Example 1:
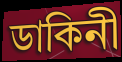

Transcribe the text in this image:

ডাকিনী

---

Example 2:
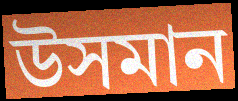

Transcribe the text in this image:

উসমান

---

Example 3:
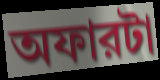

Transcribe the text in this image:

অফারটা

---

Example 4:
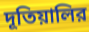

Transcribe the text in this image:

দূতিয়ালির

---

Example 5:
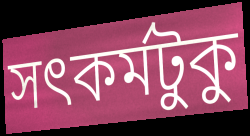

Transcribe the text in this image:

সৎকর্মটুকু